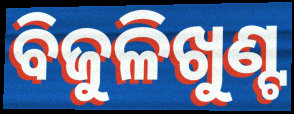
ବିଜୁଳିଖୁଣ୍ଟ